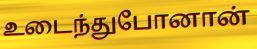
உடைந்துபோனான்